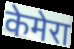
केमेरा